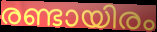
രണ്ടായിരം